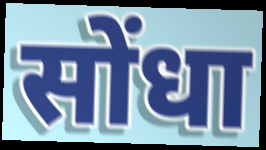
सोंधा